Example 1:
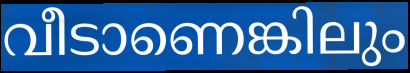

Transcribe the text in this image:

വീടാണെങ്കിലും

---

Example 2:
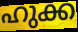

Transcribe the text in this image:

ഹുക്ക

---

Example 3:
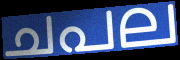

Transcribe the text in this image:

ചപല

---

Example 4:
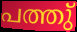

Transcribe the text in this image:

പത്തു്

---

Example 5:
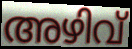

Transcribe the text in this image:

അഴിവ്